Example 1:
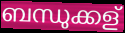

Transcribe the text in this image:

ബന്ധുക്കള്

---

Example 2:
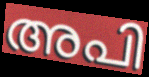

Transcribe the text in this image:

അപി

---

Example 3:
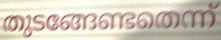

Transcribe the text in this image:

തുടങ്ങേണ്ടതെന്ന്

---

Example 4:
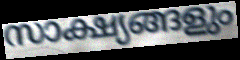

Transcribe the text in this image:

സാക്ഷ്യങ്ങളും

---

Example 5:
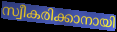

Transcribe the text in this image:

സ്വീകരിക്കാനായി